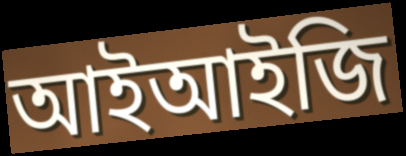
আইআইজি